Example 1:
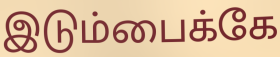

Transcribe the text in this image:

இடும்பைக்கே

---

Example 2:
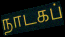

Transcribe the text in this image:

நாடகப்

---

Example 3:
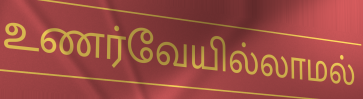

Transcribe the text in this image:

உணர்வேயில்லாமல்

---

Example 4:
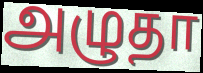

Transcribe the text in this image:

அழுதா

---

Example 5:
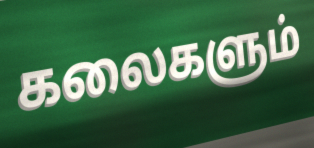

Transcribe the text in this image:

கலைகளும்